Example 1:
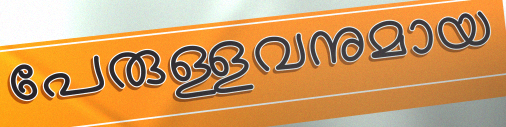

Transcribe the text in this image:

പേരുള്ളവനുമായ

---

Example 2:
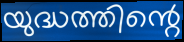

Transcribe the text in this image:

യുദ്ധത്തിന്റെ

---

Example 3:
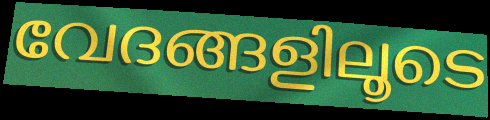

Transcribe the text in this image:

വേദങ്ങളിലൂടെ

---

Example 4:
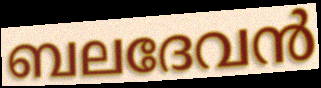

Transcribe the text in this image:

ബലദേവൻ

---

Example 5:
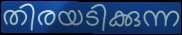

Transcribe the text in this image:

തിരയടിക്കുന്ന